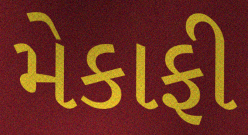
મેકાફી